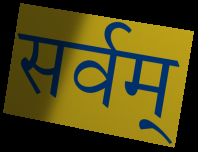
सर्वम्